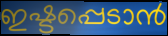
ഇഷ്ടപ്പെടാൻ